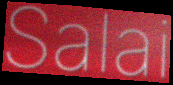
Salai